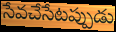
సేవచేసేటప్పుడు